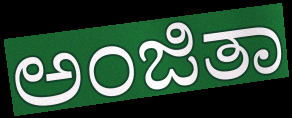
ಅಂಜಿತಾ